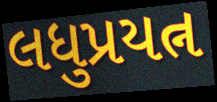
લધુપ્રયત્ન